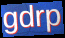
gdrp